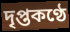
দৃপ্তকণ্ঠে